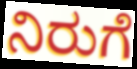
ನಿರುಗೆ